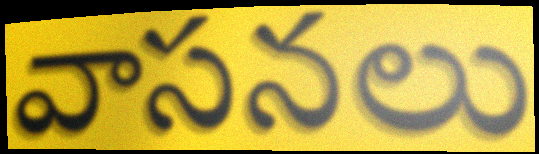
వాసనలు